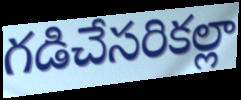
గడిచేసరికల్లా